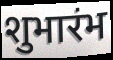
शुभारंभ